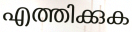
എത്തിക്കുക